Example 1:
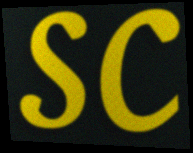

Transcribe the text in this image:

sc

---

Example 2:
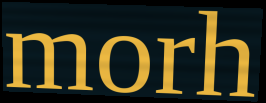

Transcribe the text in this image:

morh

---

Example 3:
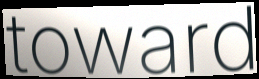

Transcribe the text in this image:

toward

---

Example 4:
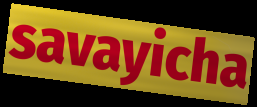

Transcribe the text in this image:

savayicha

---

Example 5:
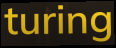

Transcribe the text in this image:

turing